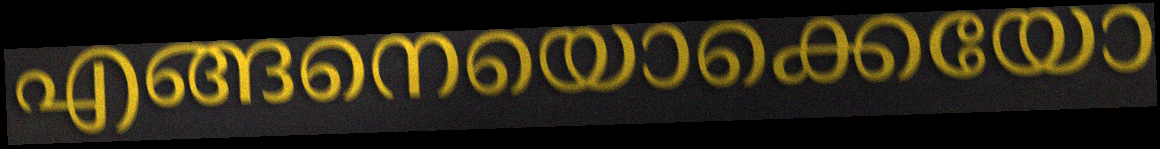
എങ്ങനെയൊക്കെയോ